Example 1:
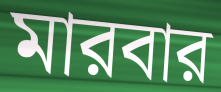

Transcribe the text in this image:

মারবার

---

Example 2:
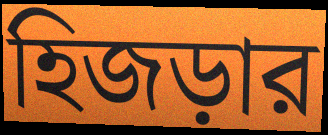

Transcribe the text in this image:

হিজড়ার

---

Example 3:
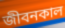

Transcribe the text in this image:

জীবনকাল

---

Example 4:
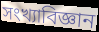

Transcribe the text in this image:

সংখ্যাবিজ্ঞান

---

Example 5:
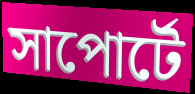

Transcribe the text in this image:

সাপোর্টে